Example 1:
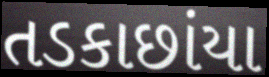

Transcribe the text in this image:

તડકાછાંયા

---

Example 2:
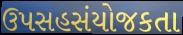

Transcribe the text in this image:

ઉપસહસંયોજકતા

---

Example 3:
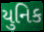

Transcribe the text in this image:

યુનિક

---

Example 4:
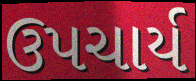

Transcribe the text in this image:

ઉપચાર્ય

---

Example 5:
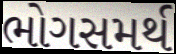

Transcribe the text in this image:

ભોગસમર્થ